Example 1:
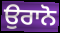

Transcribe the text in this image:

ਉਰਾਨੋ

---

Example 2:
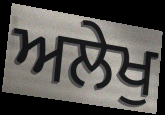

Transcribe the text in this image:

ਅਲੇਖੁ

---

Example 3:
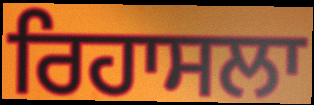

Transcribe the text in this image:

ਰਿਹਾਸਲਾ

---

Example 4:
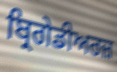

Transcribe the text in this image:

ਬ੍ਰਿਗੇਡੀਅਰਜ਼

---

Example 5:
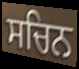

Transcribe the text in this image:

ਸਚਿਨ